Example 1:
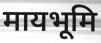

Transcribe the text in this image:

मायभूमि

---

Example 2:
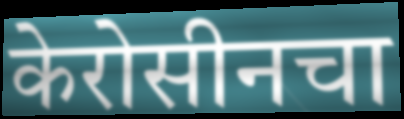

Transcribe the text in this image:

केरोसीनचा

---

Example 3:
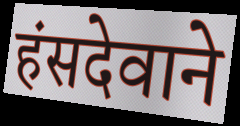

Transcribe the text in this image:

हंसदेवाने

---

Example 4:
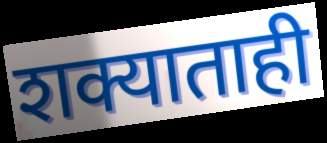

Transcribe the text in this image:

शक्याताही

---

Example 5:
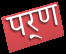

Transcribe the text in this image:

पर्ण